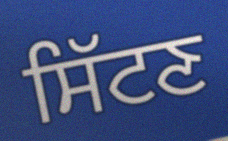
ਸਿੱਟਣ